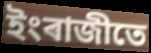
ইংৰাজীতে